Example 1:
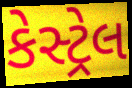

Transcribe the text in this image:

કેસ્ટ્રેલ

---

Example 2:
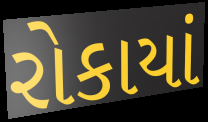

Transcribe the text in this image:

રોકાયાં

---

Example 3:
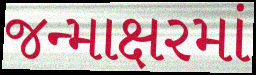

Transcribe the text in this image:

જન્માક્ષરમાં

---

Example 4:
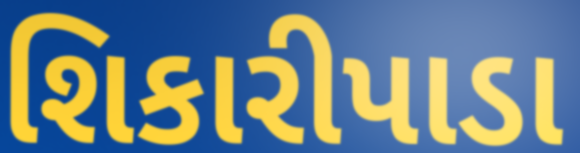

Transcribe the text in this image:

શિકારીપાડા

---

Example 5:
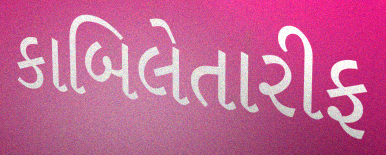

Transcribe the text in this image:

કાબિલેતારીફ